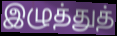
இழுத்துத்